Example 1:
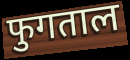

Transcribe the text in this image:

फुगताल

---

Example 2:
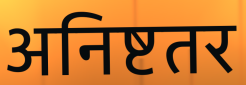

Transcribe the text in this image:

अनिष्टतर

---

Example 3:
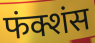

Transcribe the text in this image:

फंक्शंस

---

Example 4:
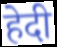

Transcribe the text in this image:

हेदी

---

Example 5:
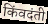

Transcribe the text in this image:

किंवदंती